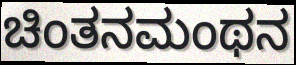
ಚಿಂತನಮಂಥನ